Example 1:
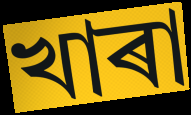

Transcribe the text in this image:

খাৰা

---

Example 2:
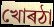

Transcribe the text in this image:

খোৰঠা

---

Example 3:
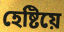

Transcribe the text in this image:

হেষ্টিয়ে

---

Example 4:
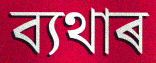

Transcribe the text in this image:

ব্যথাৰ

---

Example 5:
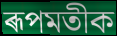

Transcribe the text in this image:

ৰূপমতীক